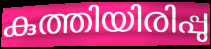
കുത്തിയിരിപ്പു